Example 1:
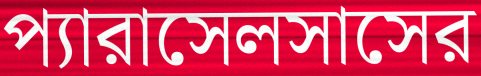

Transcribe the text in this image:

প্যারাসেলসাসের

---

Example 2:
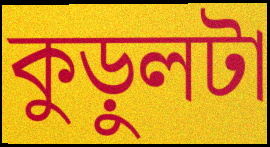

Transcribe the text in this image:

কুড়ুলটা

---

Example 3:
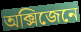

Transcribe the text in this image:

অক্সিজেনে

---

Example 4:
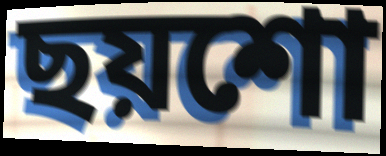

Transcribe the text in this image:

ছয়শো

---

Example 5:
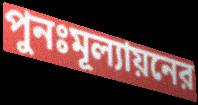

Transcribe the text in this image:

পুনঃমূল্যায়নের